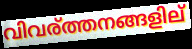
വിവര്ത്തനങ്ങളില്